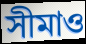
সীমাও